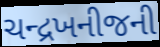
ચન્દ્રખનીજની